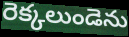
రెక్కలుండెను